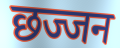
छज्जन